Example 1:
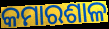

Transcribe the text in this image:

କମାରଶାଳ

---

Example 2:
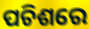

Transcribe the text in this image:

ପଚିଶରେ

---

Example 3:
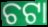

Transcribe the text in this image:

ଚଟା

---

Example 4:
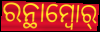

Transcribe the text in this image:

ରନ୍ଥାମ୍ବୋର୍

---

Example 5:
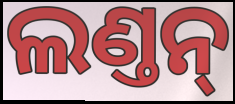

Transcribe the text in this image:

ଲଣ୍ତନ୍